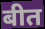
बीत